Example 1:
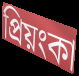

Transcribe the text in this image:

প্ৰিয়ংকা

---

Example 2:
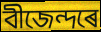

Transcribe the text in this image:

বীজেন্দৰে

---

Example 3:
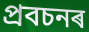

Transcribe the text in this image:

প্ৰবচনৰ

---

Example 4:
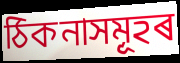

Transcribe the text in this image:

ঠিকনাসমূহৰ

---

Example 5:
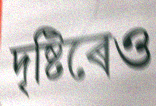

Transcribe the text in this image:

দৃষ্টিৰেও